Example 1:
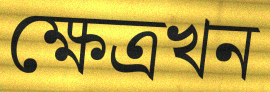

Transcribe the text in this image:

ক্ষেত্ৰখন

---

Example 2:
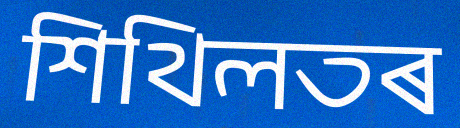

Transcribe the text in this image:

শিথিলতৰ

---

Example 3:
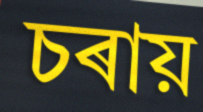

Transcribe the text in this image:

চৰায়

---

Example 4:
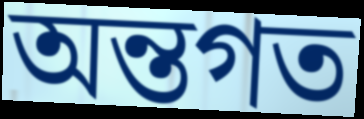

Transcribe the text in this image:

অন্তগত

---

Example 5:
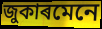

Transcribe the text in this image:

জুকাৰমেনে